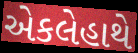
એકલેહાથે